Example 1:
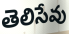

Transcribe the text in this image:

తెలిసేవు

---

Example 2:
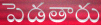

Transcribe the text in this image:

పెడతారు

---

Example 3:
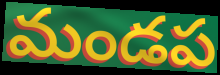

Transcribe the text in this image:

మండప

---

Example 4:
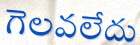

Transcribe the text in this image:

గెలవలేదు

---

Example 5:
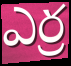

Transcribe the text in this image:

ఎర్ర